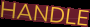
HANDLE